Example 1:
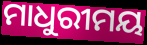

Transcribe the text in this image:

ମାଧୁରୀମୟ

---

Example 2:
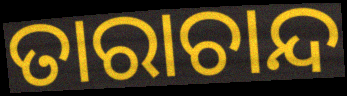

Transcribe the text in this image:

ତାରାଚାନ୍ଦ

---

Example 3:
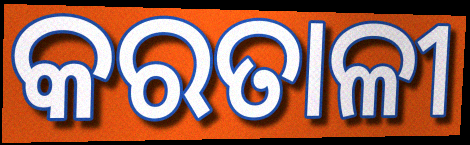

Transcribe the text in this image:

କରତାଳୀ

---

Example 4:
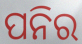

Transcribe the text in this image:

ପନିର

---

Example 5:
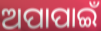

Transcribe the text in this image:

ଅପାପାଇଁ